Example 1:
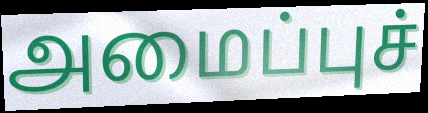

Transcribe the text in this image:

அமைப்புச்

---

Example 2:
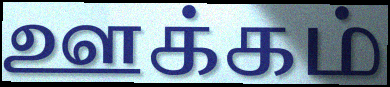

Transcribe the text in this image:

ஊக்கம்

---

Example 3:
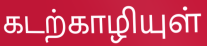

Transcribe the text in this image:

கடற்காழியுள்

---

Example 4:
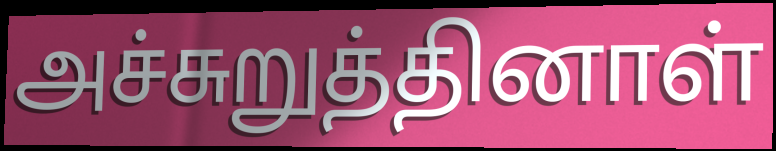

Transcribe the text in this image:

அச்சுறுத்தினாள்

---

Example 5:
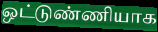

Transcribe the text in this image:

ஒட்டுண்ணியாக